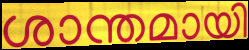
ശാന്തമായി